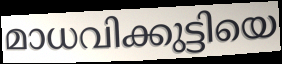
മാധവിക്കുട്ടിയെ